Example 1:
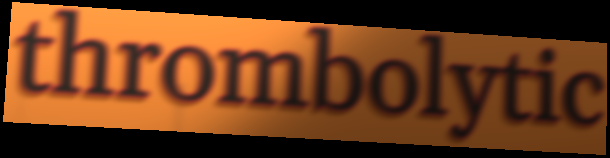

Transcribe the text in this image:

thrombolytic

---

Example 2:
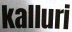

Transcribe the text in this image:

kalluri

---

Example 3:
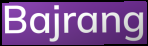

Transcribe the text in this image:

Bajrang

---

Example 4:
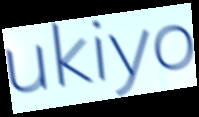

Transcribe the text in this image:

ukiyo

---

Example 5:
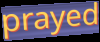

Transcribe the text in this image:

prayed